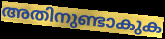
അതിനുണ്ടാകുക